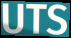
UTS